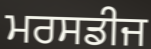
ਮਰਸਡੀਜ